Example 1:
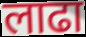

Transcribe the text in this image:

लाढा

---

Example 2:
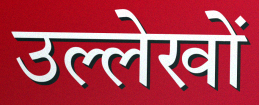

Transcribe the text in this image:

उल्लेखों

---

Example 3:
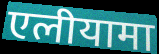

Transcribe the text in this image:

एलीयामा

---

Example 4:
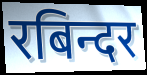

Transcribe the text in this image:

रबिन्दर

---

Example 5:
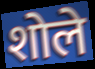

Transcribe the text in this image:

शोले